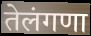
तेलंगणा